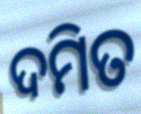
ଦମିତ